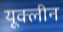
यूक्लीन